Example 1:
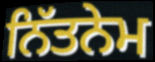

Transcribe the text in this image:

ਨਿੱਤਨੇਮ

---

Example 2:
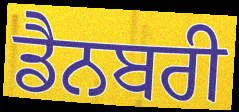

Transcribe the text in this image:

ਡੈਨਬਰੀ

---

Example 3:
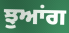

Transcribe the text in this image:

ਝੁਆਂਗ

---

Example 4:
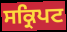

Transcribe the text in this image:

ਸਕ੍ਰਿਪਟ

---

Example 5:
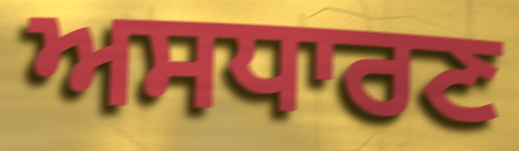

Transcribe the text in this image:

ਅਸਧਾਰਣ